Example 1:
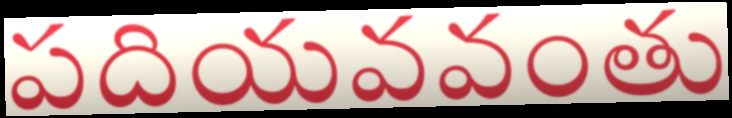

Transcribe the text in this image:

పదియవవంతు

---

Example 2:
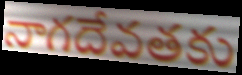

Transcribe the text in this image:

నాగదేవతకు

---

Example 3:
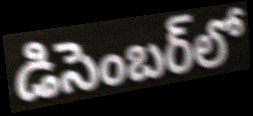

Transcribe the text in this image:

డిసెంబర్‌లో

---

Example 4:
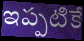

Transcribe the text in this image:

ఇప్పటికే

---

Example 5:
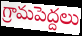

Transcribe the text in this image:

గ్రామపెద్దలు